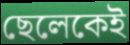
ছেলেকেই